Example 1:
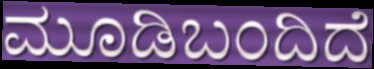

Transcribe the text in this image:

ಮೂಡಿಬಂದಿದೆ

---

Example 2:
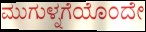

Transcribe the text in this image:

ಮುಗುಳ್ನಗೆಯೊಂದೇ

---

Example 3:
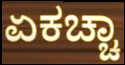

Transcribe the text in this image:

ಏಕಚ್ಚಾ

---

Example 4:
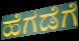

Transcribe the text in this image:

ಹೆಗಡೆಗೆ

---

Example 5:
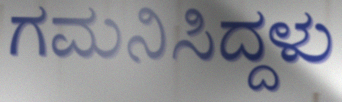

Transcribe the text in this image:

ಗಮನಿಸಿದ್ದಳು